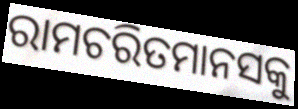
ରାମଚରିତମାନସକୁ